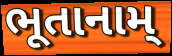
ભૂતાનામ્